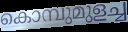
കൊമ്പുമുളച്ച